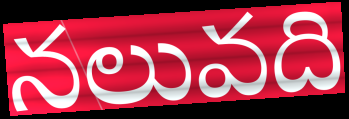
నలువది